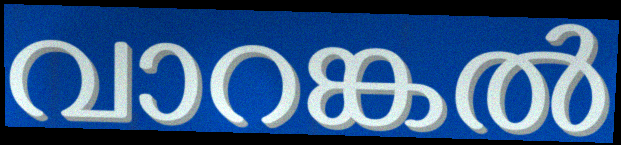
വാറങ്കൽ